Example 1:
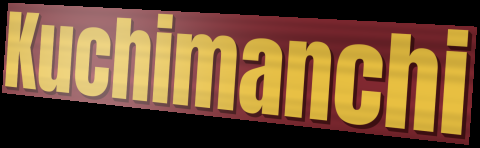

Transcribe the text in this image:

Kuchimanchi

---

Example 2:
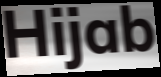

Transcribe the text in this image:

Hijab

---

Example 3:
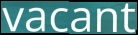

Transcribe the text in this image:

vacant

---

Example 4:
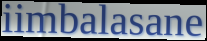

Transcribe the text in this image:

iimbalasane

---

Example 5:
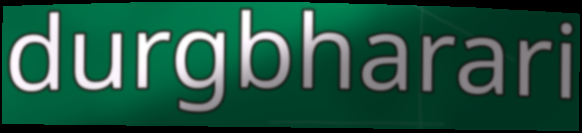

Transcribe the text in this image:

durgbharari